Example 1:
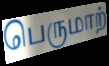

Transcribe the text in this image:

பெருமாற்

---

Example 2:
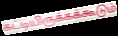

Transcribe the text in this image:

கட்டியிருக்கக்கூடும்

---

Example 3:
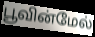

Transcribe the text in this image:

பூவின்மேல்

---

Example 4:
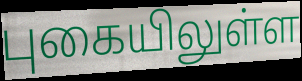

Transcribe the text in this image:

புகையிலுள்ள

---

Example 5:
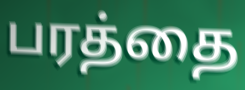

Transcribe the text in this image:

பரத்தை